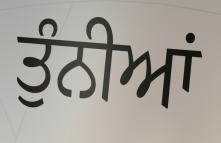
ਤੁੰਨੀਆਂ